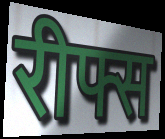
रीफ्स